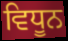
ਵਿਧੂਨ